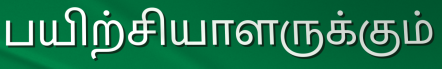
பயிற்சியாளருக்கும்